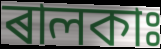
ৰালকাঃ